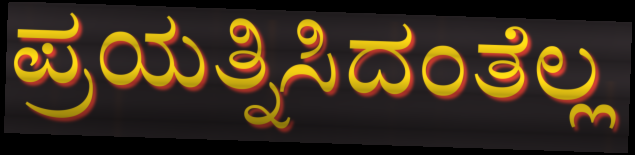
ಪ್ರಯತ್ನಿಸಿದಂತೆಲ್ಲ